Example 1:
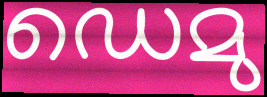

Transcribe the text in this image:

ഡെമു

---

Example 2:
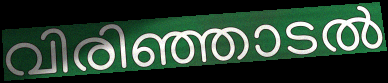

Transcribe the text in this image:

വിരിഞ്ഞാടൽ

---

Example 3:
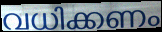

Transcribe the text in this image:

വധിക്കണം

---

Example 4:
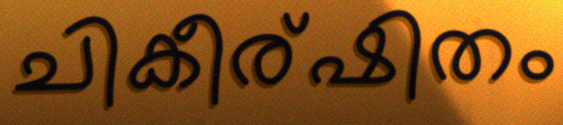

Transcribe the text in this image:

ചികീര്ഷിതം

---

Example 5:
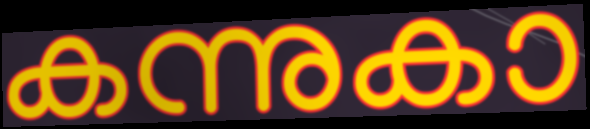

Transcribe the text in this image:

കന്നുകാ